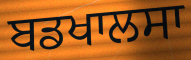
ਬਡਖਾਲਸਾ